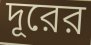
দূরের